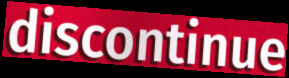
discontinue